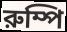
রুম্পি